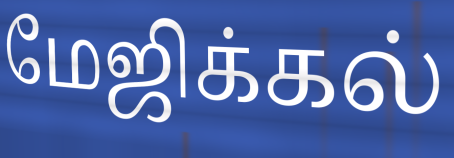
மேஜிக்கல்